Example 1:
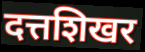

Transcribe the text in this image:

दत्तशिखर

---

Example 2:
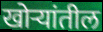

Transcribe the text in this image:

खोऱ्यांतील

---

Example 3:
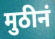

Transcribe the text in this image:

मुठीनं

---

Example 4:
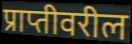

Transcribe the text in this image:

प्राप्तीवरील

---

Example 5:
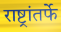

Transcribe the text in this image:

राष्ट्रांतर्फे